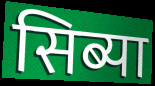
सिब्या